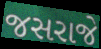
જસરાજે